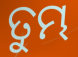
ତୁମ୍ଭ